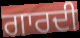
ਗਾਰਦੀ